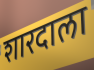
शारदाला